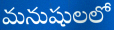
మనుషులలో